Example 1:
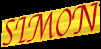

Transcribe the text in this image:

SIMON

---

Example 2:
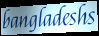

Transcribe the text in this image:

bangladeshs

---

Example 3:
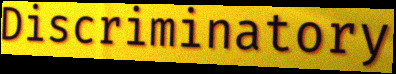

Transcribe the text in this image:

Discriminatory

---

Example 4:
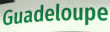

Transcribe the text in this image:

Guadeloupe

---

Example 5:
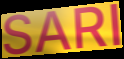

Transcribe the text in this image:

SARI